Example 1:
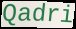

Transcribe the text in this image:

Qadri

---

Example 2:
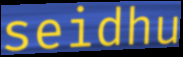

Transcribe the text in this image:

seidhu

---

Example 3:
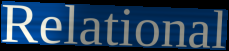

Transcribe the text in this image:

Relational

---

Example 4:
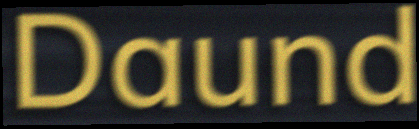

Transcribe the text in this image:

Daund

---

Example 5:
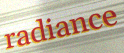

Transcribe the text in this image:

radiance